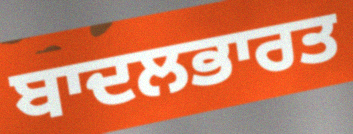
ਬਾਦਲਭਾਰਤ